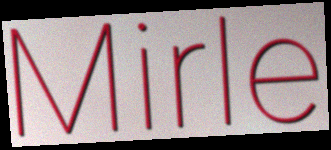
Mirle